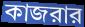
কাজরার